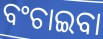
ବଂଚାଇବା